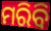
ମରିବି